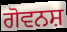
ਗੋਵਨਸ਼